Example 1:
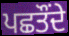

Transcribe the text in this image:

ਪਛਤੌਂਦੇ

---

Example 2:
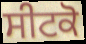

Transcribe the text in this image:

ਸੀਟਕੋ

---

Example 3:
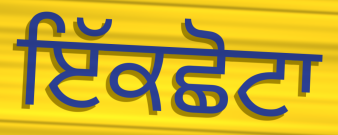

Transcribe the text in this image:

ਇੱਕਛੋਟਾ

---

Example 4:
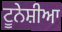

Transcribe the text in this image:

ਟੂਨੇਸ਼ੀਆ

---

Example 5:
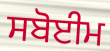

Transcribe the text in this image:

ਸਬੋਈਮ